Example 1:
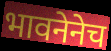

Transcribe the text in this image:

भावनेनेच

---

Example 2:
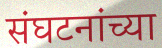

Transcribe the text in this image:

संघटनांच्या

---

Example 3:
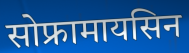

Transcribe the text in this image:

सोफ्रामायसिन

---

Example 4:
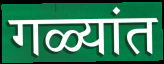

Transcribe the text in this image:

गळ्यांत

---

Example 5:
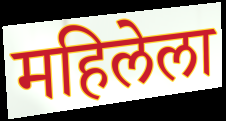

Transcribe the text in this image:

महिलेला